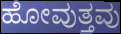
ಹೋವುತ್ತವು